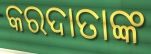
କରଦାତାଙ୍କ